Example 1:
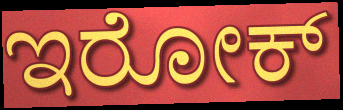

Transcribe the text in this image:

ಇರೋಕ್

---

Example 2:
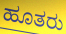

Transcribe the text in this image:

ಹೂತರು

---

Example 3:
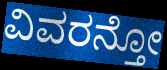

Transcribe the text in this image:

ವಿವರನ್ತೋ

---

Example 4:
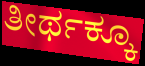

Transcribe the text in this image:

ತೀರ್ಥಕ್ಕೂ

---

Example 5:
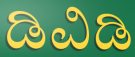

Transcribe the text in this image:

ಡಿವಿಡಿ